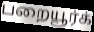
பறையூர்க்